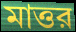
মাত্তর